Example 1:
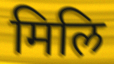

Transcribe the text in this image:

मिलि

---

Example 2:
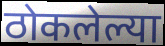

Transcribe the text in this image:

ठोकलेल्या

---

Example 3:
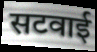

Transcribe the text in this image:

सटवाई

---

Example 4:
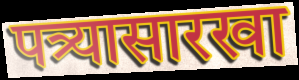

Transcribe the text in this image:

पत्र्यासारखा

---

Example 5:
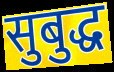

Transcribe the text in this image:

सुबुद्ध